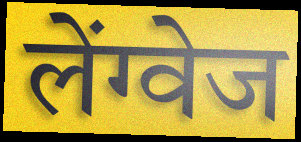
लेंग्वेज